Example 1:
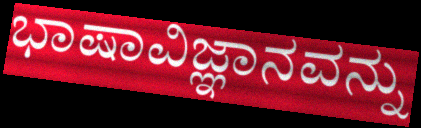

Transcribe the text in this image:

ಭಾಷಾವಿಜ್ಞಾನವನ್ನು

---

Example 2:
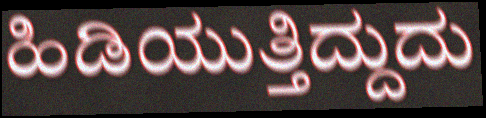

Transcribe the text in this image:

ಹಿಡಿಯುತ್ತಿದ್ದುದು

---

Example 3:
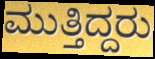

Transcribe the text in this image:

ಮುತ್ತಿದ್ದರು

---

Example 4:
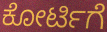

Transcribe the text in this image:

ಕೋರ್ಟಿಗೆ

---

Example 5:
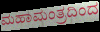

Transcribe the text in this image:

ಮಹಾಮಂತ್ರದಿಂದ